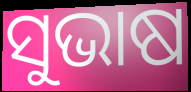
ସୁଭାଷ